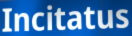
Incitatus